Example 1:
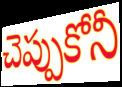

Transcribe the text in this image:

చెప్పుకోనీ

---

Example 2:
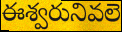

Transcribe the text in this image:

ఈశ్వరునివలె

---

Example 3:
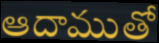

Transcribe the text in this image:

ఆదాముతో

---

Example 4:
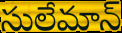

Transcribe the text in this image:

సులేమాన్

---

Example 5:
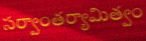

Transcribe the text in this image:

సర్వాంతర్యామిత్వం